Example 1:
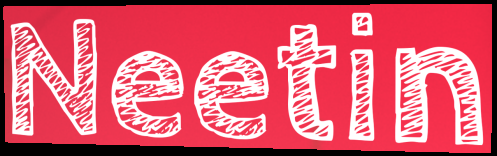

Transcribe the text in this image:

Neetin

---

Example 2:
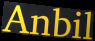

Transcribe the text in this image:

Anbil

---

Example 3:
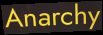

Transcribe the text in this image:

Anarchy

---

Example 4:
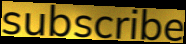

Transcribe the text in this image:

subscribe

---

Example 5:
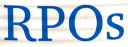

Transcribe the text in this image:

RPOs